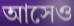
আসেও